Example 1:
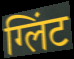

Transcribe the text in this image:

ग्लिंट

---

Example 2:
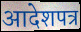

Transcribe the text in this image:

आदेशपत्र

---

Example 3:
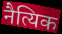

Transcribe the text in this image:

नैत्यिक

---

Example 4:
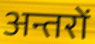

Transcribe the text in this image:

अन्तरों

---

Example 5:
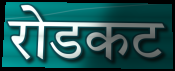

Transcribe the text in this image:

रोडकट